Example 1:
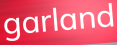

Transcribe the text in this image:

garland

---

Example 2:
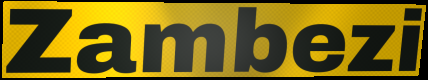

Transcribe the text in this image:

Zambezi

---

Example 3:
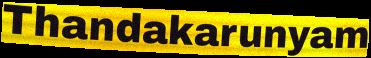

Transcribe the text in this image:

Thandakarunyam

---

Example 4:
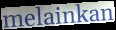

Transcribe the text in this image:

melainkan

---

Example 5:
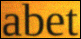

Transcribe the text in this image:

abet